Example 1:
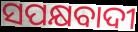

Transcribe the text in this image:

ସପକ୍ଷବାଦୀ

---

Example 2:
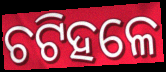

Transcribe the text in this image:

ଚଟିହଳେ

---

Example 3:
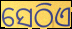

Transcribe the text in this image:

ସେଠିଏ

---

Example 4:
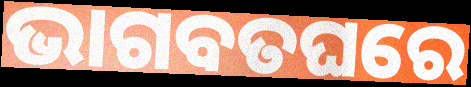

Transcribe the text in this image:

ଭାଗବତଘରେ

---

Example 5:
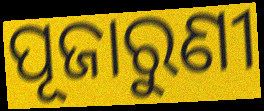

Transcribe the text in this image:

ପୂଜାରୁଣୀ